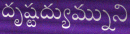
దృష్టద్యుమ్నుని